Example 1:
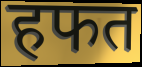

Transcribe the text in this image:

हफत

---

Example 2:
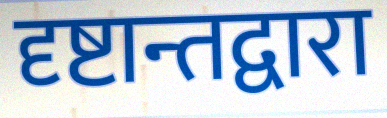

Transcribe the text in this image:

दृष्टान्तद्वारा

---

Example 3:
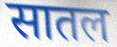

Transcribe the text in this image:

सातल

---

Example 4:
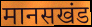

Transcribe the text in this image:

मानसखंड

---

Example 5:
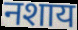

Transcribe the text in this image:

नशाय